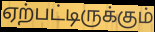
ஏற்பட்டிருக்கும்